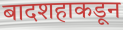
बादशहाकडून